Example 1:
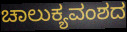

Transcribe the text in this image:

ಚಾಲುಕ್ಯವಂಶದ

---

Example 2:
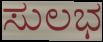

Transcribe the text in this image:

ಸುಲಭ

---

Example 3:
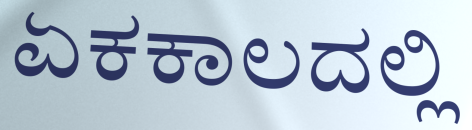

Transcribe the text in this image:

ಏಕಕಾಲದಲ್ಲಿ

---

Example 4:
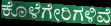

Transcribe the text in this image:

ಕೊಳೆಗೇರಿಗಳಿವೆ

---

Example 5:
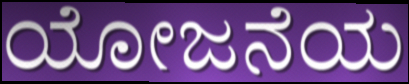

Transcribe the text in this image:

ಯೋಜನೆಯ